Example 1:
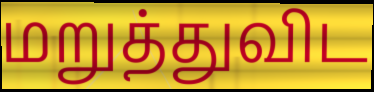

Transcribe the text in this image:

மறுத்துவிட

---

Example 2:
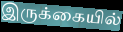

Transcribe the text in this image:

இருக்கையில்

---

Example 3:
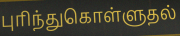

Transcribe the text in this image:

புரிந்துகொள்ளுதல்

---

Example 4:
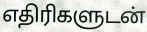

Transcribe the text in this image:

எதிரிகளுடன்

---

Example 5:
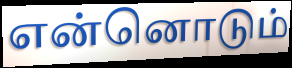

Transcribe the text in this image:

என்னொடும்